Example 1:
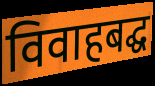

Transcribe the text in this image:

विवाहबद्घ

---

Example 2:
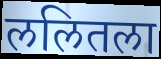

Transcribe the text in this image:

ललितला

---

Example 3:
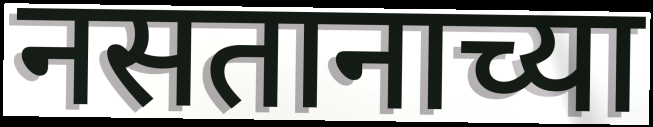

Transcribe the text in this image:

नसतानाच्या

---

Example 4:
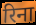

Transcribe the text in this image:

रिना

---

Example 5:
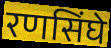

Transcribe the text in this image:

रणसिंघे